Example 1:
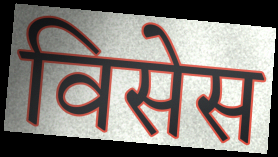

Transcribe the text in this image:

विसेस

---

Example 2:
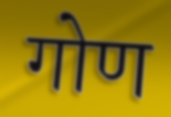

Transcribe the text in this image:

गोण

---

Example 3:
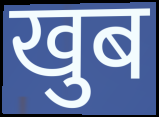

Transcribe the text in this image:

खुब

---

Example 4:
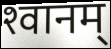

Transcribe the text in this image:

श्वानम्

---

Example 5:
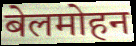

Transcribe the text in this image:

बेलमोहन